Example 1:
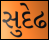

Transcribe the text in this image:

સુદેઢ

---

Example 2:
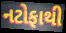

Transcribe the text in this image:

નટોફાથી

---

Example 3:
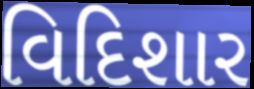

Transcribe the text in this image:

વિદિશાર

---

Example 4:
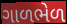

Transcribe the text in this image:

ગાળભેળ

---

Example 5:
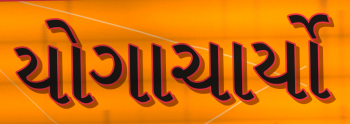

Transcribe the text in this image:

યોગાચાર્યો